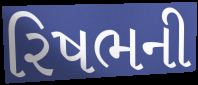
રિષભની